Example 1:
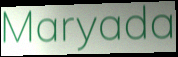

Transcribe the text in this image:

Maryada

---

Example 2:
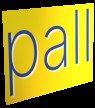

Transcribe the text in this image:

pall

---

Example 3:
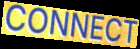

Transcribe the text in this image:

CONNECT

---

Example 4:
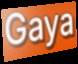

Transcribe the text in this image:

Gaya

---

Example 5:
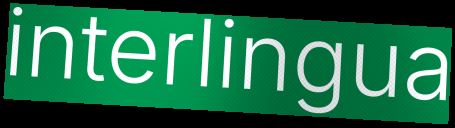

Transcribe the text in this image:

interlingua